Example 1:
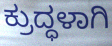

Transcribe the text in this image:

ಕ್ರುದ್ಧಳಾಗಿ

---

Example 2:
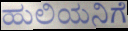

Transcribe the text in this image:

ಹುಲಿಯನಿಗೆ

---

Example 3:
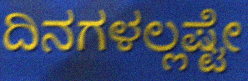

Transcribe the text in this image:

ದಿನಗಳಲ್ಲಷ್ಟೇ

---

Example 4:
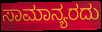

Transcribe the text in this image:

ಸಾಮಾನ್ಯರದು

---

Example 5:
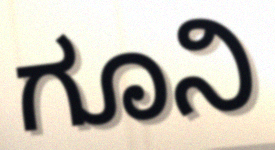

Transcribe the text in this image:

ಗೂನಿ